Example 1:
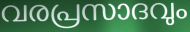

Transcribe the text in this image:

വരപ്രസാദവും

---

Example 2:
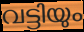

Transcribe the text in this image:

വട്ടിയും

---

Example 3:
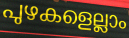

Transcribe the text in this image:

പുഴകളെല്ലാം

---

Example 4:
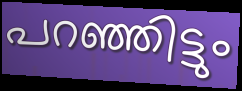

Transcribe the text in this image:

പറഞ്ഞിട്ടും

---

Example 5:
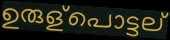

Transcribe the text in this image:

ഉരുള്പൊട്ടല്